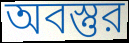
অবস্তুর